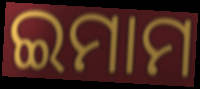
ଇମାମ